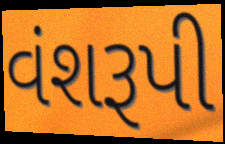
વંશરૂપી